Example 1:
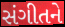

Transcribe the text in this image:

સંગીતને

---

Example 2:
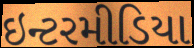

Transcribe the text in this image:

ઇન્ટરમીડિયા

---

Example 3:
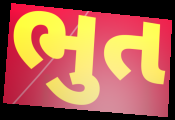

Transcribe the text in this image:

ભુત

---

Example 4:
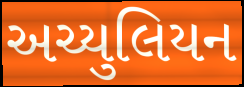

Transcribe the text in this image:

અચ્યુલિયન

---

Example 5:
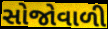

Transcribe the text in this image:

સોજોવાળી